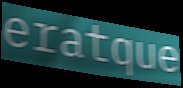
eratque